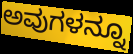
ಅವುಗಳನ್ನೂ